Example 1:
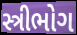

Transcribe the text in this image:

સ્ત્રીભોગ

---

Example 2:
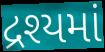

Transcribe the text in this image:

દ્રશ્યમાં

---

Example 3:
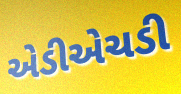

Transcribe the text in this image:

એડીએચડી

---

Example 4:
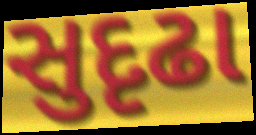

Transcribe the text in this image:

સુદૃઢા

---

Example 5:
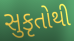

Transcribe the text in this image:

સુકૃતોથી